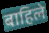
बाहिले